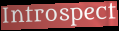
Introspect